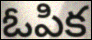
ఓపిక